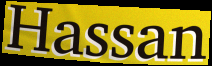
Hassan